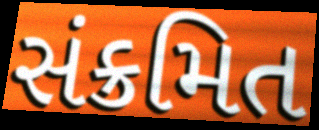
સંક્રમિત